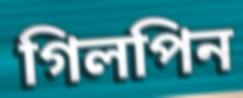
গিলপিন